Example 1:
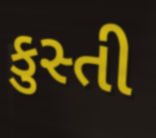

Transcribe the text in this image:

કુસ્તી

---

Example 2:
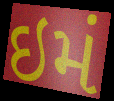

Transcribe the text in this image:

ઇમં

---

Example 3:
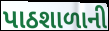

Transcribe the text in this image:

પાઠશાળાની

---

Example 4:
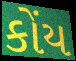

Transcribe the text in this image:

કોંય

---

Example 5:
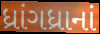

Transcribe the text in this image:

ધ્રાંગધ્રાનાં